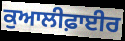
ਕੁਆਲੀਫ਼ਾਈਰ